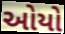
ઓયો